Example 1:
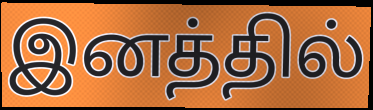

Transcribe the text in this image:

இனத்தில்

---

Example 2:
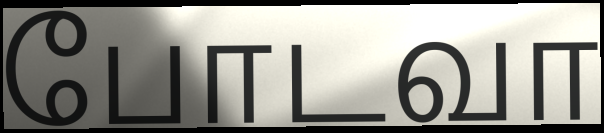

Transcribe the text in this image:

போடவா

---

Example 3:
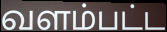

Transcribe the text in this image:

வளம்பட்ட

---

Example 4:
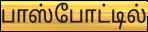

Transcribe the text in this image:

பாஸ்போட்டில்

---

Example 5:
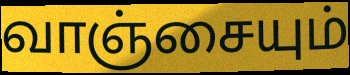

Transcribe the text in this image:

வாஞ்சையும்